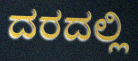
ದರದಲ್ಲಿ